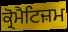
ਕ੍ਰੋਮੈਟਿਜ਼ਮ